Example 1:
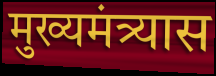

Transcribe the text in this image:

मुख्यमंत्र्यास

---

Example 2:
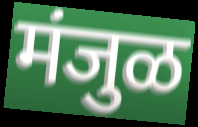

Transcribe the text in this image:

मंजुळ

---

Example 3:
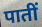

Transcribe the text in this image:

पातीं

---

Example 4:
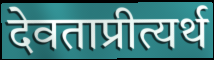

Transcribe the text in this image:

देवताप्रीत्यर्थ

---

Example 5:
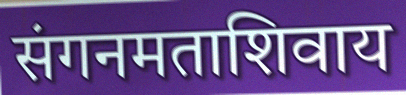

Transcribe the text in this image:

संगनमताशिवाय